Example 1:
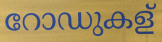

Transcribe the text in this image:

റോഡുകള്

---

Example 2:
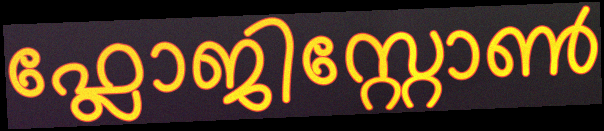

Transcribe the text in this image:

ഫ്ലോജിസ്റ്റോൺ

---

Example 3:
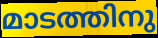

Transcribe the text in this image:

മാടത്തിനു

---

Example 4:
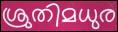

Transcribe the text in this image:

ശ്രുതിമധുര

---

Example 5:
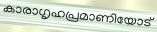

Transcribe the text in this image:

കാരാഗൃഹപ്രമാണിയോട്